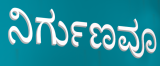
ನಿರ್ಗುಣವೂ